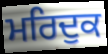
ਮਰਿਦੁਕ